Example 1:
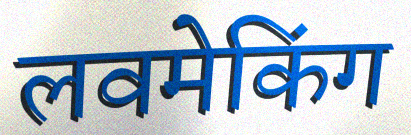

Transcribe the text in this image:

लवमेकिंग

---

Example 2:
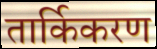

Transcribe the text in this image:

तार्किकरण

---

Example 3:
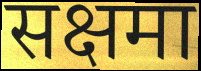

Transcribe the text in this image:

सक्षमा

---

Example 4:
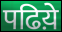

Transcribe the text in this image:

पढिय़े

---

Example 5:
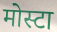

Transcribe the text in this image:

मोस्टा